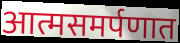
आत्मसमर्पणात